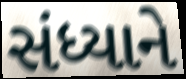
સંધ્યાને